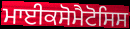
ਮਾਈਕਸੋਮੈਟੋਸਿਸ